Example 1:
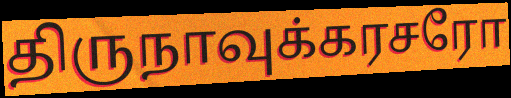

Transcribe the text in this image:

திருநாவுக்கரசரோ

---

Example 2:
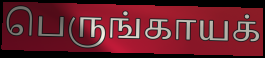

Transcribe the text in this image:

பெருங்காயக்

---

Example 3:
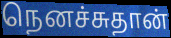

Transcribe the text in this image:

நெனச்சுதான்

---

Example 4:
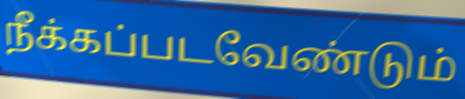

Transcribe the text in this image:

நீக்கப்படவேண்டும்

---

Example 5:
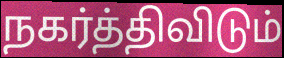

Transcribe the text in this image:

நகர்த்திவிடும்